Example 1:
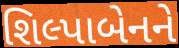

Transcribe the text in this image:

શિલ્પાબેનને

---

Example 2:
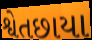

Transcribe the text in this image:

શ્વેતછાયા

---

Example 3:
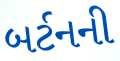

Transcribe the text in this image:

બર્ટનની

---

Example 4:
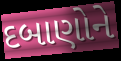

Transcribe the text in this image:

દબાણોને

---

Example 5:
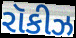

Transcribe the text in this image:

રૉકીઝ